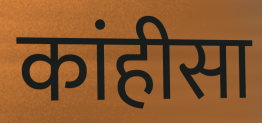
कांहीसा